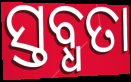
ସ୍ତବ୍ଧତା